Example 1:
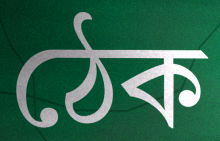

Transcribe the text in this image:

ঠেক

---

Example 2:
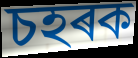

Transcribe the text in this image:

চহৰক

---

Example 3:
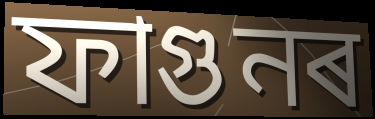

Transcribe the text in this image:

ফাগুনৰ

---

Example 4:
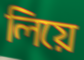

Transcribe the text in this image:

লিয়ে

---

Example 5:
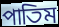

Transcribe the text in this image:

পাতিম